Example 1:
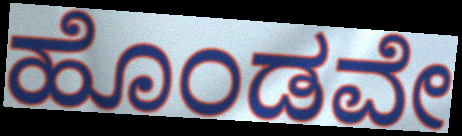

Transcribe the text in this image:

ಹೊಂಡವೇ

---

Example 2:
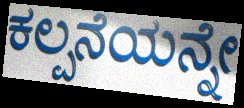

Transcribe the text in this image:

ಕಲ್ಪನೆಯನ್ನೇ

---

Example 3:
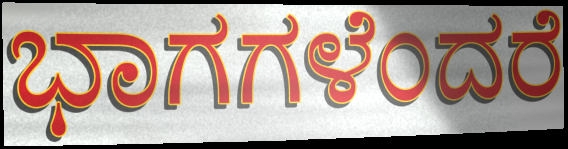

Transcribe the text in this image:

ಭಾಗಗಳೆಂದರೆ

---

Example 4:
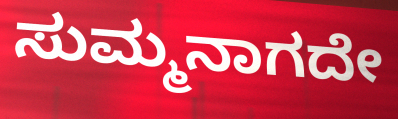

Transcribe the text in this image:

ಸುಮ್ಮನಾಗದೇ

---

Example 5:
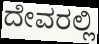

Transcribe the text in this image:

ದೇವರಲ್ಲಿ